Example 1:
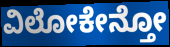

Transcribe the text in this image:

ವಿಲೋಕೇನ್ತೋ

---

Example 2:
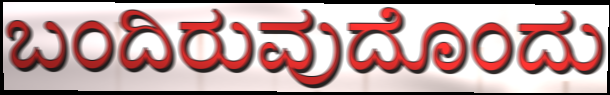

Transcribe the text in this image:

ಬಂದಿರುವುದೊಂದು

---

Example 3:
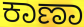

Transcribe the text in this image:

ಕಾಣಾ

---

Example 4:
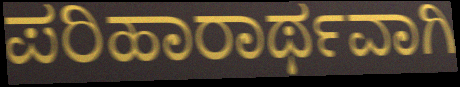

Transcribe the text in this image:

ಪರಿಹಾರಾರ್ಥವಾಗಿ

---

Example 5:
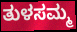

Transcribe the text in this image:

ತುಳಸಮ್ಮ